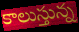
కాలుస్తున్న